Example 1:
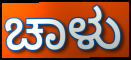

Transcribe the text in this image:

ಚಾಳು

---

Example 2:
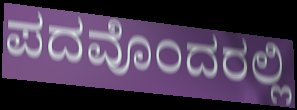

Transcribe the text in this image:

ಪದವೊಂದರಲ್ಲಿ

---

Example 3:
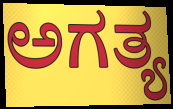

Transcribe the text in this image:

ಅಗತ್ಯ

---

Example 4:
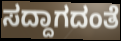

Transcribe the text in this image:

ಸದ್ದಾಗದಂತೆ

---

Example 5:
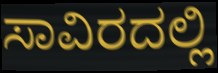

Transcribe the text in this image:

ಸಾವಿರದಲ್ಲಿ